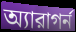
অ্যারাগর্ন